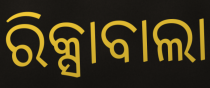
ରିକ୍ସାବାଲା